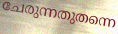
ചേരുന്നതുതന്നെ